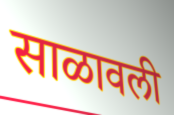
साळावली